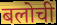
बलोची